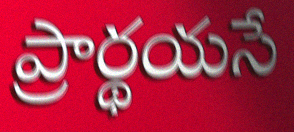
ప్రార్థయసే